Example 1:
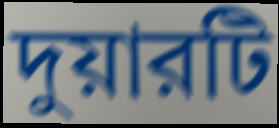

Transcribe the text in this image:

দুয়ারটি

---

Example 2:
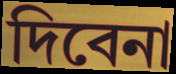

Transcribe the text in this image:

দিবেনা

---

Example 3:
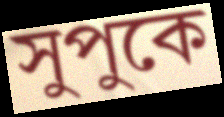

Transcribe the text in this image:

সুপুকে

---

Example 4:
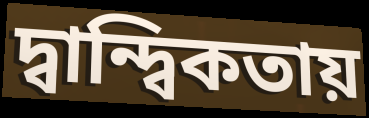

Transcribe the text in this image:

দ্বান্দ্বিকতায়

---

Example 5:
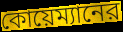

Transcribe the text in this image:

কোয়েম্যানের